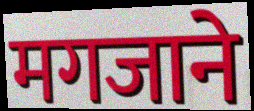
मगजाने